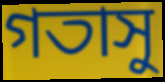
গতাসু